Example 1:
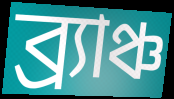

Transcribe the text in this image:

ব্র্যাঞ্চ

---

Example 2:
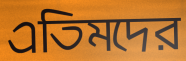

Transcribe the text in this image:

এতিমদের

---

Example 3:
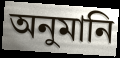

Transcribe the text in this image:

অনুমানি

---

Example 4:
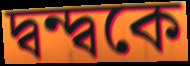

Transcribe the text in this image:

দ্বন্দ্বকে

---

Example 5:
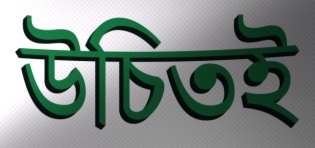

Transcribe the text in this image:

উচিতই